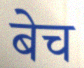
बेच